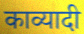
काव्यादी